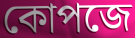
কোপজে